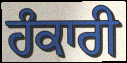
ਹੰਕਾਰੀ